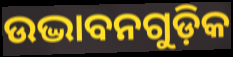
ଉଦ୍ଭାବନଗୁଡ଼ିକ